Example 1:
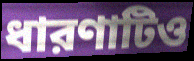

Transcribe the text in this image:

ধারণাটিও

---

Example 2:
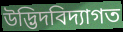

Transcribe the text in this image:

উদ্ভিদবিদ্যাগত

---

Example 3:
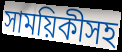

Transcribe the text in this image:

সাময়িকীসহ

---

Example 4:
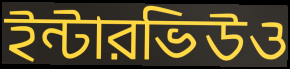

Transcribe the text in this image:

ইন্টারভিউও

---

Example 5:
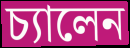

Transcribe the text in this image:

চ্যালেন